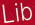
Lib